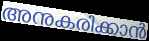
അനുകരിക്കാൻ